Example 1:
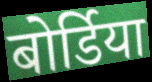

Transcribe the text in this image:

बोर्डिया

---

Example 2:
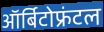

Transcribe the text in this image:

ऑर्बिटोफ्रंटल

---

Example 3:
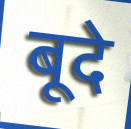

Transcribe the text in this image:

बूदे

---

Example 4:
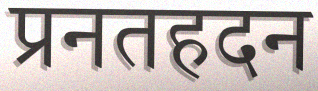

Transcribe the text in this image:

प्रनतहदन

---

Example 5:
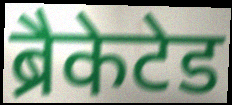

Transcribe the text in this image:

ब्रैकेटेड